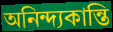
অনিন্দ্যকান্তি